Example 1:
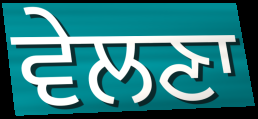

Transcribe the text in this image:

ਵੇਲਣਾ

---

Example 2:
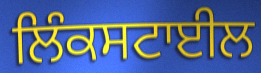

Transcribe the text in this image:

ਲਿੰਕਸਟਾਈਲ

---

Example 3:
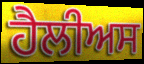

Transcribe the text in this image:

ਹੈਲੀਅਸ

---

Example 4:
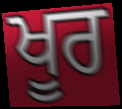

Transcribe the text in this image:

ਖੂਰ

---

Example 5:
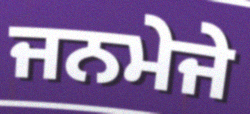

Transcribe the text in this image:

ਜਨਮੇਜੇ